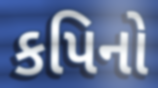
કપિનો